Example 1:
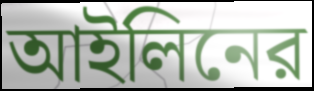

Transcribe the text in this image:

আইলিনের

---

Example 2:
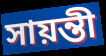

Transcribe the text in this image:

সায়ন্তী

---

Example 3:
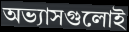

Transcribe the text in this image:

অভ্যাসগুলোই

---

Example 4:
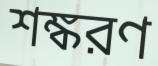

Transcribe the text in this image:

শঙ্করণ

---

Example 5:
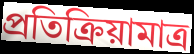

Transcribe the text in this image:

প্রতিক্রিয়ামাত্র